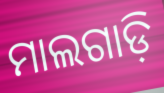
ମାଲଗାଡ଼ି